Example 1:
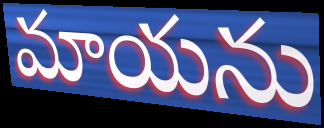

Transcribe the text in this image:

మాయను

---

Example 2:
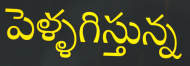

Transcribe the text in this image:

పెళ్ళగిస్తున్న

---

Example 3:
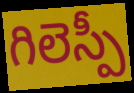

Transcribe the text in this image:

గిలెస్పీ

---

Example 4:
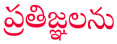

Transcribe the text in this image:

ప్రతిజ్ఞలను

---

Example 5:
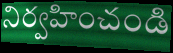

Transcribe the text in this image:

నిర్వహించండి